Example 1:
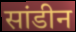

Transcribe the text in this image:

सांडीन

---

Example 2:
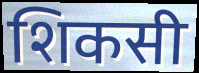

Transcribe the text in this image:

शिकसी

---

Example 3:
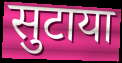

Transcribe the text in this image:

सुटाया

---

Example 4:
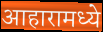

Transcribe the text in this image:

आहारामध्ये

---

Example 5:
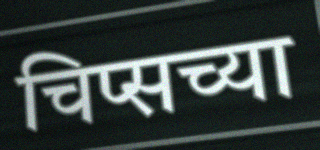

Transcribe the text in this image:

चिप्सच्या